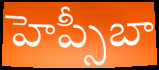
హెప్సీబా